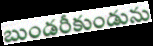
బుండరీకుండును